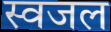
स्वजल